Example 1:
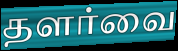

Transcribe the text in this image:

தளர்வை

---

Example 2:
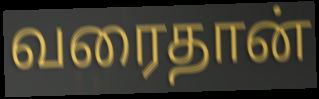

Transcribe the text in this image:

வரைதான்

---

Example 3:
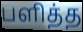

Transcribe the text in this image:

பளித்த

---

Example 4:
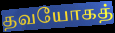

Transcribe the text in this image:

தவயோகத்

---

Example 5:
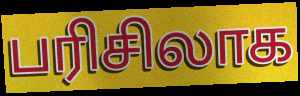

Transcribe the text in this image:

பரிசிலாக